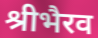
श्रीभैरव